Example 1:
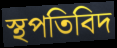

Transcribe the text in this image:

স্থপতিবিদ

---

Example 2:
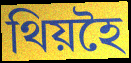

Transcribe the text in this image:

থিয়হৈ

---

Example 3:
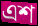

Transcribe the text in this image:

এশ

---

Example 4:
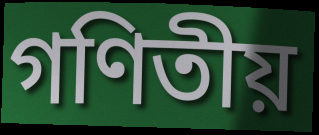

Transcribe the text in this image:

গণিতীয়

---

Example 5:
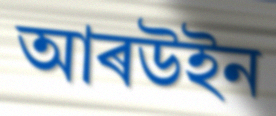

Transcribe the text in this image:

আৰউইন